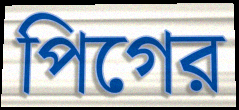
পিগের